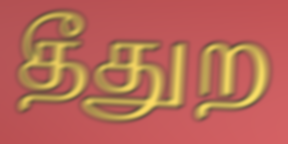
தீதுற